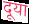
दूया